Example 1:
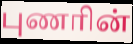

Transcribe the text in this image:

புணரின்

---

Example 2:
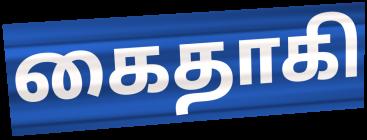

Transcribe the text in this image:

கைதாகி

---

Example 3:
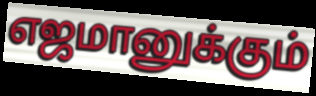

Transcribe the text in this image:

எஜமானுக்கும்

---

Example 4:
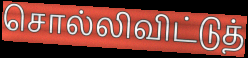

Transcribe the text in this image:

சொல்லிவிட்டுத்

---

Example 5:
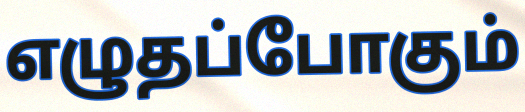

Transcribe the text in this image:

எழுதப்போகும்